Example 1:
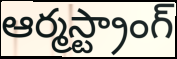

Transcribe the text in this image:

ఆర్మస్ట్రాంగ్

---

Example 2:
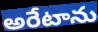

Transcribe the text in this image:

అరేటాను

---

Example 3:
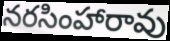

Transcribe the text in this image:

నరసింహారావు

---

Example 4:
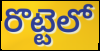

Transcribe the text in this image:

రొట్టెలో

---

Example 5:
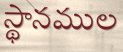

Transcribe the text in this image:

స్థానముల